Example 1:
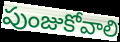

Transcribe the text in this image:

పుంజుకోవాలి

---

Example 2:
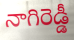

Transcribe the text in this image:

నాగిరెడ్డీ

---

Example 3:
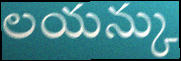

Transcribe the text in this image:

లయన్కు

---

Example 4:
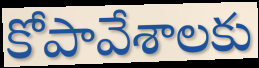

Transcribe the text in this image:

కోపావేశాలకు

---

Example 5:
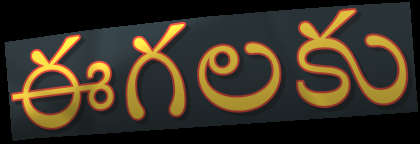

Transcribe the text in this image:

ఈగలకు